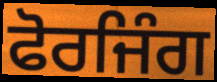
ਫੋਰਜਿੰਗ